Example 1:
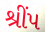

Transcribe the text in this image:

શ્રીંપ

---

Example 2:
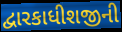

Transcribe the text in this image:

દ્વારકાધીશજીની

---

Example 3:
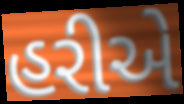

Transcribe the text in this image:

હરીએ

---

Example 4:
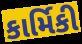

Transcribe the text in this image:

કાર્મિકી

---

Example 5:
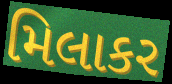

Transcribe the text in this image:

મિલાકર